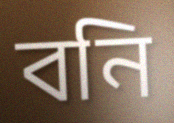
বনি